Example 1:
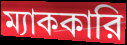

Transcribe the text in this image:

ম্যাককারি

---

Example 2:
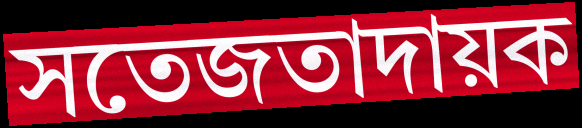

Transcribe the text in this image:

সতেজতাদায়ক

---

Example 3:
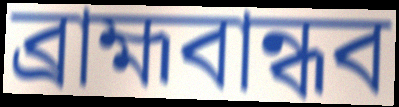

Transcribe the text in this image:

ব্রাহ্মবান্ধব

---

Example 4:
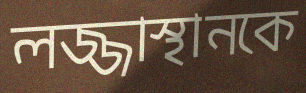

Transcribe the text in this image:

লজ্জাস্থানকে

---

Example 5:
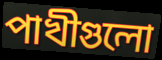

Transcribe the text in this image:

পাখীগুলো